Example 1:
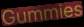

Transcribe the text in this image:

Gummies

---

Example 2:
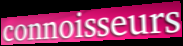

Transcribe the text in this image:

connoisseurs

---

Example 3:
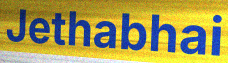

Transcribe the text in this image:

Jethabhai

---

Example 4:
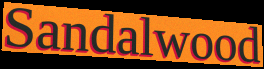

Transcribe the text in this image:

Sandalwood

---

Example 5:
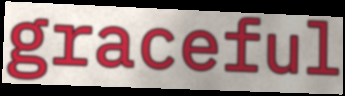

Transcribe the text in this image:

graceful